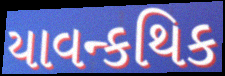
યાવન્કથિક